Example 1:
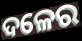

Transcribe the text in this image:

ଦଳେର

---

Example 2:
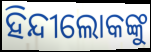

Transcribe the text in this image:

ହିନ୍ଦୀଲୋକଙ୍କୁ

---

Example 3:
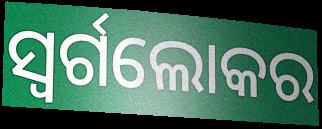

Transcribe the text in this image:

ସ୍ୱର୍ଗଲୋକର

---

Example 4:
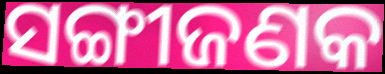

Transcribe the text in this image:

ସଙ୍ଗୀଜଣକ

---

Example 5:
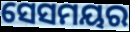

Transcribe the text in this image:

ସେସମୟର